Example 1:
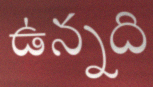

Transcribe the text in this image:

ఉన్నది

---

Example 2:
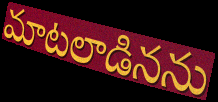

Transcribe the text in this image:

మాటలాడినను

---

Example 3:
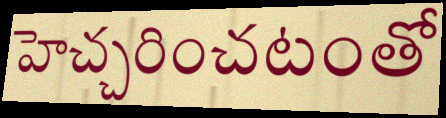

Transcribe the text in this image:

హెచ్చరించటంతో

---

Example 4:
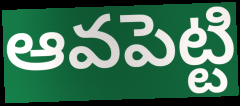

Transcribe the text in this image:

ఆవపెట్టి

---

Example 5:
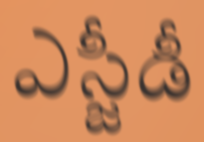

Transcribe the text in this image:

ఎస్జీడీ